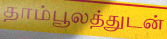
தாம்பூலத்துடன்